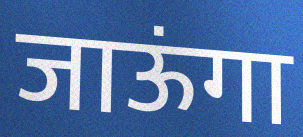
जाऊंगा